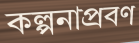
কল্পনাপ্রবণ